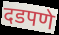
दडपणे